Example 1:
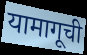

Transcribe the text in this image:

यामागूची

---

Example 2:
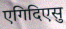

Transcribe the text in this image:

एगिदिएसु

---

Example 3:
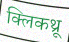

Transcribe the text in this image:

क्लिकथ्रू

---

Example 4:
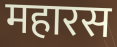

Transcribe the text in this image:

महारस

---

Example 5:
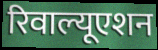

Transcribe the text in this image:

रिवाल्यूएशन